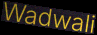
Wadwali